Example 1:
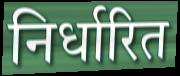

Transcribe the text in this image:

निर्धारित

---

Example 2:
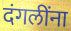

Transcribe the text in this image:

दंगलींना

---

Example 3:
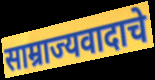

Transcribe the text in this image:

साम्राज्यवादाचे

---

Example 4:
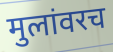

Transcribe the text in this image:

मुलांवरच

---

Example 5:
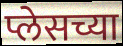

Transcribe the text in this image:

प्लेसच्या